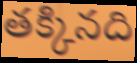
తక్కినది